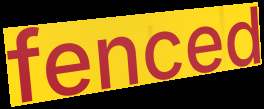
fenced